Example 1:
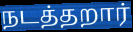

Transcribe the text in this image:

நடத்தறார்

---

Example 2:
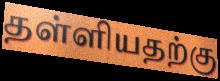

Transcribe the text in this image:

தள்ளியதற்கு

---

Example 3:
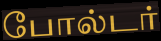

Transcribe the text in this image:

போல்டர்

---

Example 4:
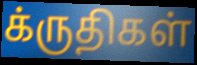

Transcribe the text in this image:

க்ருதிகள்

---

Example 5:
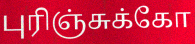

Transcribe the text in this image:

புரிஞ்சுக்கோ